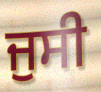
ਜੁਸੀ